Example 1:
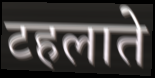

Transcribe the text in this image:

टहलाते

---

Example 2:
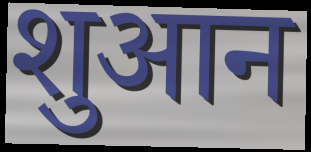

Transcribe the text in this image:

शुआन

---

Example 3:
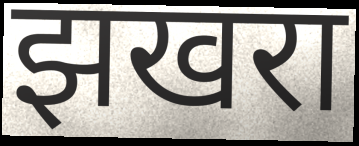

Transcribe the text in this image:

झखरा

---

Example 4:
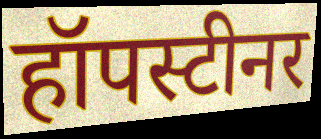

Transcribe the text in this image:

हॉपस्टीनर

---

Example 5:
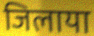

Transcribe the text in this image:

जिलाया